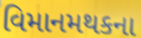
વિમાનમથકના